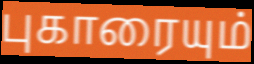
புகாரையும்